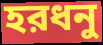
হরধনু